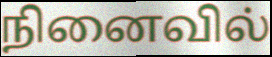
நினைவில்